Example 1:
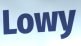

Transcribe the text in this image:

Lowy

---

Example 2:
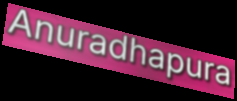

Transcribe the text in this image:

Anuradhapura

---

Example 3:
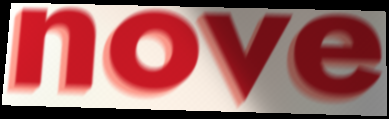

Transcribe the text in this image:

nove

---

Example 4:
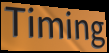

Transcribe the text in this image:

Timing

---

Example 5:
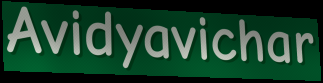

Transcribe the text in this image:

Avidyavichar